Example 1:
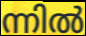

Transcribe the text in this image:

ന്നിൽ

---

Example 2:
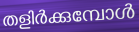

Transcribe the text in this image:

തളിർക്കുമ്പോൾ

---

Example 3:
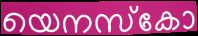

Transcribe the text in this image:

യെനസ്കോ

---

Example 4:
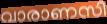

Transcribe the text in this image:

വാരാണസി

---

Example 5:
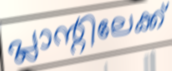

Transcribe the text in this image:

പ്ലാന്റിലേക്ക്